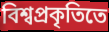
বিশ্বপ্রকৃতিতে